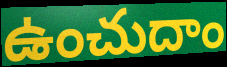
ఉంచుదాం